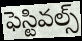
ఫెస్టివల్స్